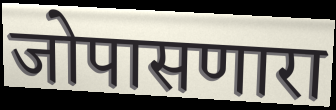
जोपासणारा